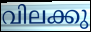
വിലക്കു